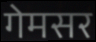
गेमसर